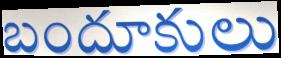
బందూకులు